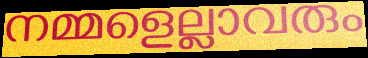
നമ്മളെല്ലാവരും